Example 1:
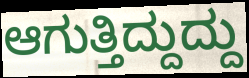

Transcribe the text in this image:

ಆಗುತ್ತಿದ್ದುದ್ದು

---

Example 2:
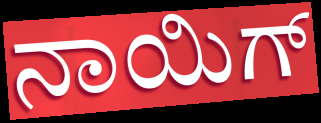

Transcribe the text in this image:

ನಾಯಿಗ್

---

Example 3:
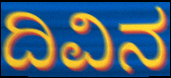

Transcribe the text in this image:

ದಿವಿನ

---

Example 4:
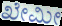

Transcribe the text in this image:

ಖೇಮೀ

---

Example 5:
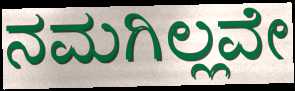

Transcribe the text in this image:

ನಮಗಿಲ್ಲವೇ